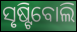
ସୃଷ୍ଟିବୋଲି